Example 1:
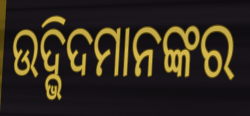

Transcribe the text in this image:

ଉଦ୍ଭିଦମାନଙ୍କର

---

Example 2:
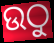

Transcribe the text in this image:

ଉଠୁ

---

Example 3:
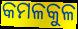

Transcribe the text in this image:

କମଳକୁଳ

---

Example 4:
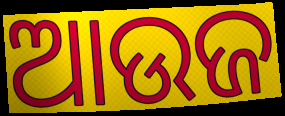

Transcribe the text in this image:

ଆଉଜ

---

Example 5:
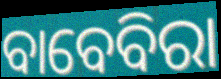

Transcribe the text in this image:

ବାବେବିରା